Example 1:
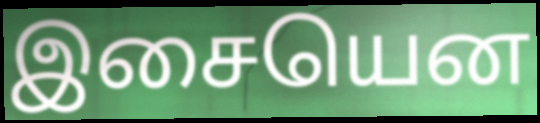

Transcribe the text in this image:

இசையென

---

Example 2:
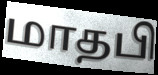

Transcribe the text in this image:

மாதபி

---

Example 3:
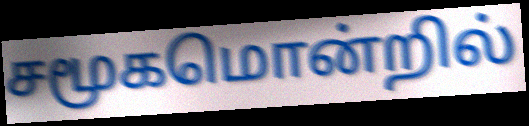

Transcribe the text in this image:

சமூகமொன்றில்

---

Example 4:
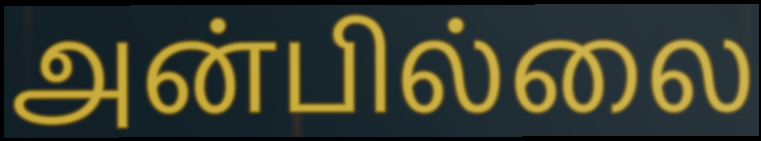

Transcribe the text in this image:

அன்பில்லை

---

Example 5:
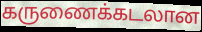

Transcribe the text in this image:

கருணைக்கடலான